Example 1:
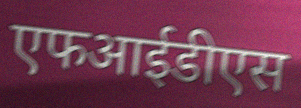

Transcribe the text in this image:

एफआईडीएस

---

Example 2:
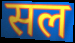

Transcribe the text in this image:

सल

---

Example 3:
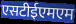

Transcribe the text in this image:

एसटीईएमएम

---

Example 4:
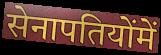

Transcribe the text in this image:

सेनापतियोंमें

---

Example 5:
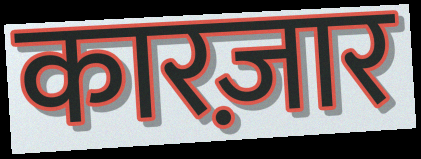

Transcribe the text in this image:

कारज़ार